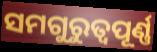
ସମଗୁରୁତ୍ଵପୂର୍ଣ୍ଣ